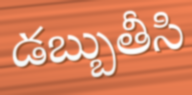
డబ్బుతీసి